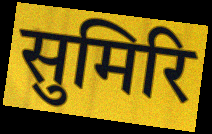
सुमिरि